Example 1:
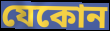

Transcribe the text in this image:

যেকোন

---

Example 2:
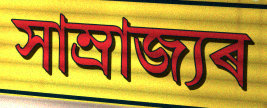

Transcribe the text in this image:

সাম্ৰাজ্যৰ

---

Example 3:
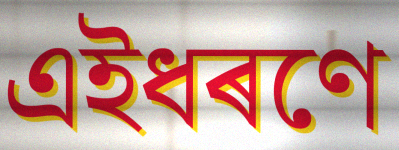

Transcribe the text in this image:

এইধৰণে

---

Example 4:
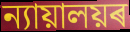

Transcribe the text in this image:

ন্যায়ালয়ৰ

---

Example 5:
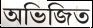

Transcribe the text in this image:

অভিজিত